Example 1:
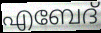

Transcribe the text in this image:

എബേദ്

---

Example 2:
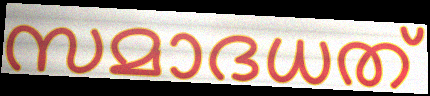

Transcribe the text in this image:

സമാദധത്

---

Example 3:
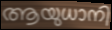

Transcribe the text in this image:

ആയുധാനി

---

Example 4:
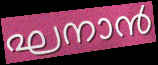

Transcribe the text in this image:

ഘനാൻ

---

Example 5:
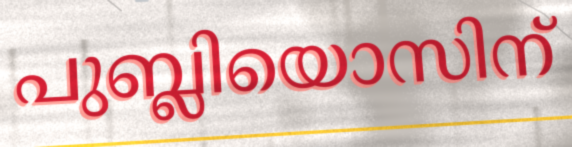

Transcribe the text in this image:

പുബ്ലിയൊസിന്